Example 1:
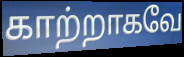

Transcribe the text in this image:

காற்றாகவே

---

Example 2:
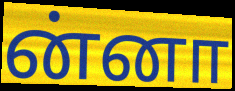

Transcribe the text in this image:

ன்னா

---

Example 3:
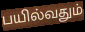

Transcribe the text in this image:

பயில்வதும்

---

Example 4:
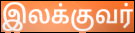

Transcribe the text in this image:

இலக்குவர்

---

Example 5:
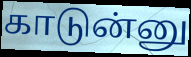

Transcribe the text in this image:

காடுன்னு